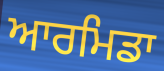
ਆਰਮਿਡਾ